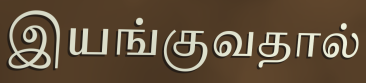
இயங்குவதால்